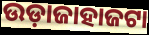
ଉଡ଼ାଜାହାଜଟା